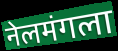
नेलमंगला